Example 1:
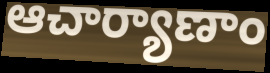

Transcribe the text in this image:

ఆచార్యాణాం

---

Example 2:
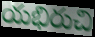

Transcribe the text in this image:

యభిరుచి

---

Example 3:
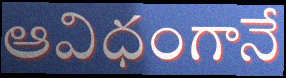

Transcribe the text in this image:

ఆవిధంగానే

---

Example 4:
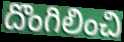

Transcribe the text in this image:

దొంగిలించి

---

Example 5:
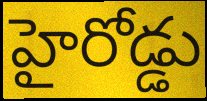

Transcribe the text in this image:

హైరోడ్డు